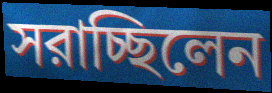
সরাচ্ছিলেন